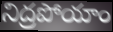
నిద్రపోయాం